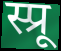
स्प्रू